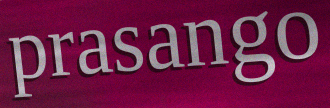
prasango